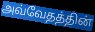
அவ்வேதத்தின்